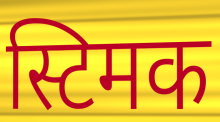
स्टिमक